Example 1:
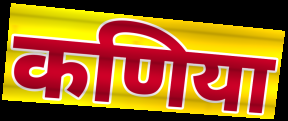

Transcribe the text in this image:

कणिया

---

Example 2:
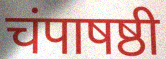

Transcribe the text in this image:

चंपाषष्ठी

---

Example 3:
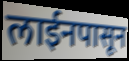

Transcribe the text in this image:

लाईनपासून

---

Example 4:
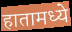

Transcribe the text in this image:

हातामध्ये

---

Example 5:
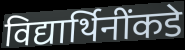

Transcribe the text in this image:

विद्यार्थिनींकडे